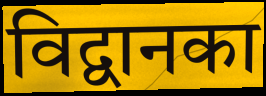
विद्वानका